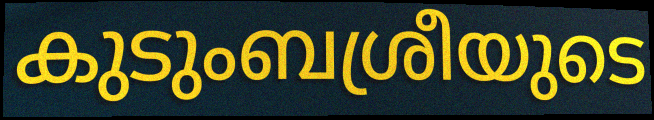
കുടുംബശ്രീയുടെ